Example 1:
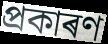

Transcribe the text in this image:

প্ৰকাৰণ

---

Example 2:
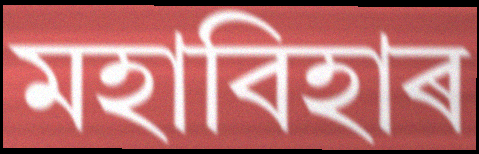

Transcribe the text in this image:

মহাবিহাৰ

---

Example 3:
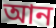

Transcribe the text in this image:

আন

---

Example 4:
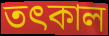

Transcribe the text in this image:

তৎকাল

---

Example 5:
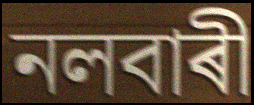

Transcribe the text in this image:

নলবাৰী